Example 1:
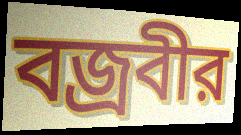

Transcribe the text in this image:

বজ্রবীর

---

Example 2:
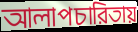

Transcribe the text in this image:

আলাপচারিতায়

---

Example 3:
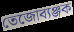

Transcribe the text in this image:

তেজোব্যঞ্জক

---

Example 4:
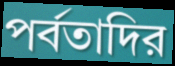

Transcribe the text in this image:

পর্বতাদির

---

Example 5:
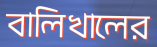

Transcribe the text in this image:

বালিখালের